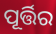
ପୂର୍ତ୍ତିର